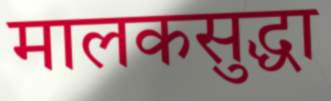
मालकसुद्धा